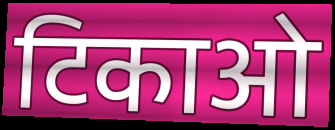
टिकाओ